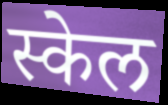
स्केल